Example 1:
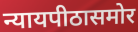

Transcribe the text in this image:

न्यायपीठासमोर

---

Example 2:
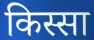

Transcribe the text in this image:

किस्सा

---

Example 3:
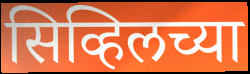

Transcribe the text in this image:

सिव्हिलच्या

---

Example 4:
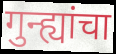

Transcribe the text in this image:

गुन्ह्यांचा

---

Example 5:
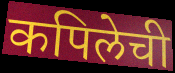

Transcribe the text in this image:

कपिलेची